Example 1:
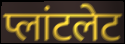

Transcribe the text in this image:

प्लांटलेट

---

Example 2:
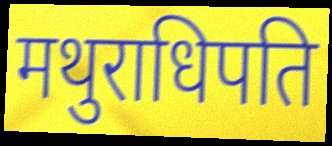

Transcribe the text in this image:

मथुराधिपति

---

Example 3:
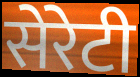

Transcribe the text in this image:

सेरेटी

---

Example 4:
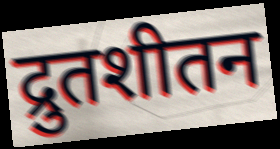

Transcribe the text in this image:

द्रुतशीतन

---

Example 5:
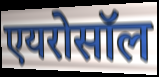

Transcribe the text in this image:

एयरोसॉल